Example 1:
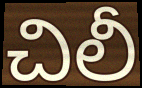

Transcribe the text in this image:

చిలీ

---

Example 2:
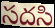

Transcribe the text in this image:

సదసి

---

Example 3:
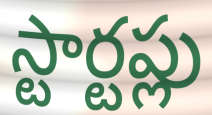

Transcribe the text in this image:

స్టార్టప్లు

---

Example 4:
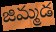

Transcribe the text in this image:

జిమ్మడ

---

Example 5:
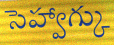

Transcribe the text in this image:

సెహ్వాగ్కు